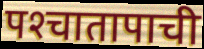
पश्चातापाची